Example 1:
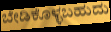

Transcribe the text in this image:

ಬೇಡಿಕೊಳ್ಳಬಹುದು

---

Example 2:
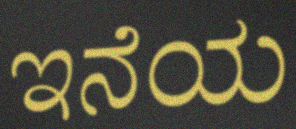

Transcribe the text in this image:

ಇನೆಯ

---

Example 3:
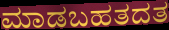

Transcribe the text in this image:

ಮಾಡಬಹತದತ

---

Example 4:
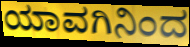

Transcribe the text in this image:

ಯಾವಗಿನಿಂದ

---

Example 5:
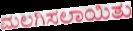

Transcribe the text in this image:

ಮಲಗಿಸಲಾಯಿತು